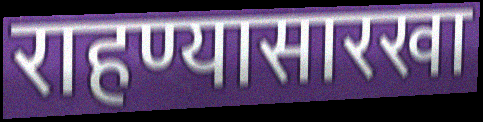
राहण्यासारखा